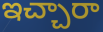
ఇచ్చారా